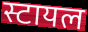
स्टायल